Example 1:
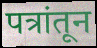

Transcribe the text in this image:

पत्रांतून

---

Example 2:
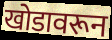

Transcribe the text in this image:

खोडावरून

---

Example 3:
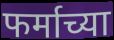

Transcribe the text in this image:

फर्माच्या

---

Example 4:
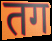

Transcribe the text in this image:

तग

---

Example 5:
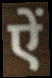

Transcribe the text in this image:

ऐं